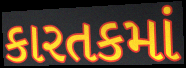
કારતકમાં